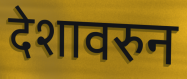
देशावरुन